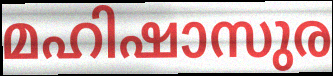
മഹിഷാസുര